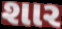
શાર